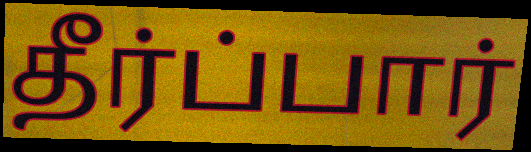
தீர்ப்பார்